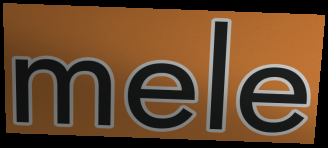
mele